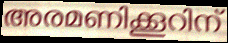
അരമണിക്കൂറിന്